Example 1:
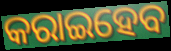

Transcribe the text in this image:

କରାଇହେବ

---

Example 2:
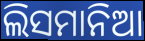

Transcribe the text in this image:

ଲିସମାନିଆ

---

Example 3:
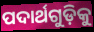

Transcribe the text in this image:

ପଦାର୍ଥଗୁଡ଼ିକୁ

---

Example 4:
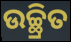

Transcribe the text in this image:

ଉଚ୍ଛ୍ରିତ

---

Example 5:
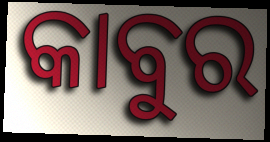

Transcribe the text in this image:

କାବୁର